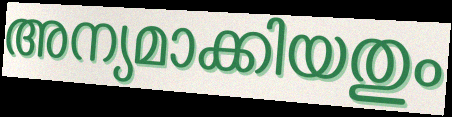
അന്യമാക്കിയതും